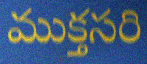
ముక్తసరి